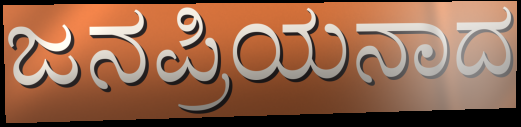
ಜನಪ್ರಿಯನಾದ